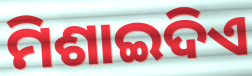
ମିଶାଇଦିଏ